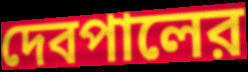
দেবপালের